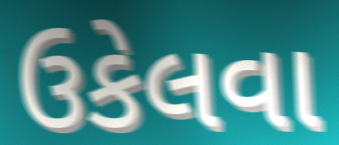
ઉકેલવા